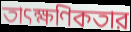
তাৎক্ষণিকতার